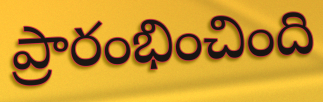
ప్రారంభించింది